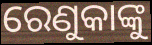
ରେଣୁକାଙ୍କୁ